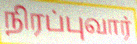
நிரப்புவார்